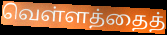
வெள்ளத்தைத்